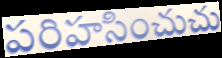
పరిహసించుచు